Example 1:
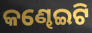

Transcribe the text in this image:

କଣ୍ଢେଇଟି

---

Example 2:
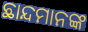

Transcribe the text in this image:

ଛାନ୍ଦମାନଙ୍କ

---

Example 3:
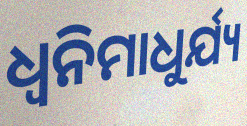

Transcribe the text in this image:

ଧ୍ୱନିମାଧୁର୍ଯ୍ୟ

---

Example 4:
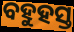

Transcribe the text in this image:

ବହୁହସ୍ତ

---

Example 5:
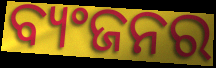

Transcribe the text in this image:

ବ୍ୟଂଜନର